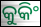
କୁକିଂ